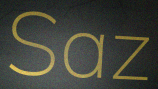
Saz